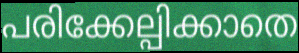
പരിക്കേല്പിക്കാതെ